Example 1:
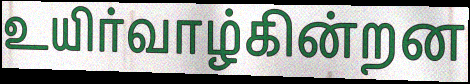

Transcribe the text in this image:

உயிர்வாழ்கின்றன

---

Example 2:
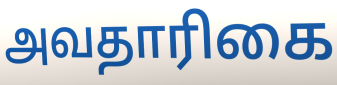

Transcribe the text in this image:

அவதாரிகை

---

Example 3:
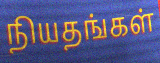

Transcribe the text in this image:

நியதங்கள்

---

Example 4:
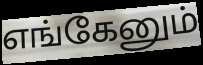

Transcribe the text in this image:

எங்கேனும்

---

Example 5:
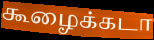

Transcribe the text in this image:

கூழைக்கடா